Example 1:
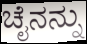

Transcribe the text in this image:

ಚೈನನ್ನು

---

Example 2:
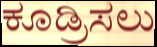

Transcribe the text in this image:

ಕೂಡ್ರಿಸಲು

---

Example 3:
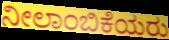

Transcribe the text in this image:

ನೀಲಾಂಬಿಕೆಯರು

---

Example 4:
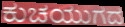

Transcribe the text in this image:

ಕುಚಯುಗದ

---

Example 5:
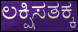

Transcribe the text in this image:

ಲಕ್ಷಿಸತಕ್ಕ